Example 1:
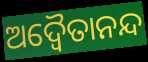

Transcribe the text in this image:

ଅଦ୍ଵୈତାନନ୍ଦ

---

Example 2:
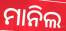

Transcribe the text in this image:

ମାନିଲ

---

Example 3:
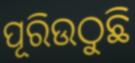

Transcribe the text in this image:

ପୂରିଉଠୁଛି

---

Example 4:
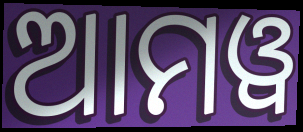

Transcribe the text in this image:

ଆମୱ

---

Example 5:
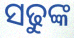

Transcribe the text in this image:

ସଢୁଙ୍କ